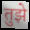
तुझे